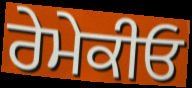
ਰੇਮੇਕੀਓ